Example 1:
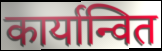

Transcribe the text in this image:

कार्यान्वित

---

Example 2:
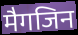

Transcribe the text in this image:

मैगजिन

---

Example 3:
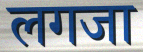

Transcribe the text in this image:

लगजा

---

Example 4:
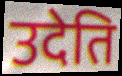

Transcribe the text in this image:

उदेति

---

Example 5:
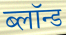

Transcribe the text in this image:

ब्लॉन्ड